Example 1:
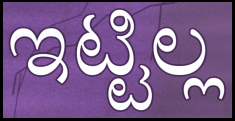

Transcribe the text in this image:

ಇಟ್ಟಿಲ್ಲ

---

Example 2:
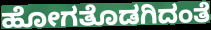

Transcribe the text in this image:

ಹೋಗತೊಡಗಿದಂತೆ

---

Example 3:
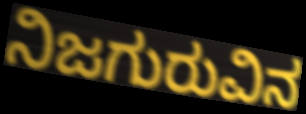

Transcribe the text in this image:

ನಿಜಗುರುವಿನ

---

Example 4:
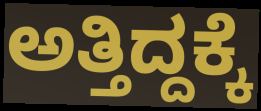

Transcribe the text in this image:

ಅತ್ತಿದ್ದಕ್ಕೆ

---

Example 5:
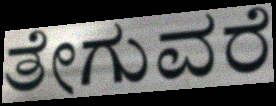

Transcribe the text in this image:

ತೇಗುವರೆ